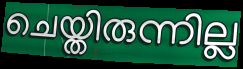
ചെയ്തിരുന്നില്ല